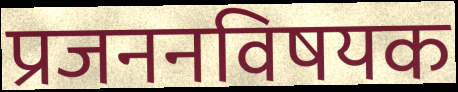
प्रजननविषयक